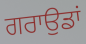
ਗਰਾਉਡਾਂ